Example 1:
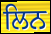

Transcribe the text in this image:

ਲਿਨ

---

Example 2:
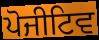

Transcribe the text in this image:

ਪੋਜੀਟਿਵ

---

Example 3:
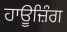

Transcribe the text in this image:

ਹਾਊਜ਼ਿੰਗ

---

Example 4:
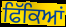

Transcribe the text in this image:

ਫਿੱਕਿਆਂ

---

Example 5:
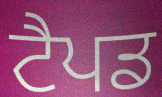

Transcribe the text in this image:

ਟੈਪਡ